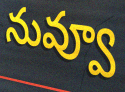
నువ్వూ